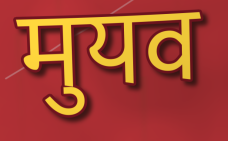
मुयव